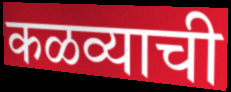
कळव्याची